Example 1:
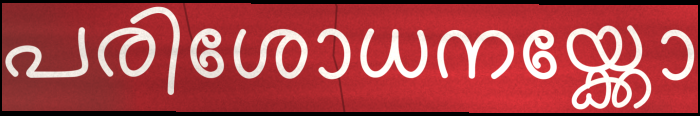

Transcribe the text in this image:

പരിശോധനയ്ക്കോ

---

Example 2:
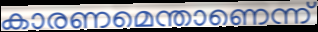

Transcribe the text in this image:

കാരണമെന്താണെന്ന്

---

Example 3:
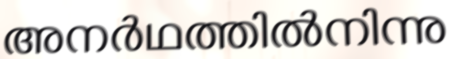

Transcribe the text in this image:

അനർഥത്തിൽനിന്നു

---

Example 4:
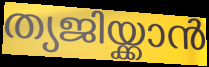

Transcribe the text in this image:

ത്യജിയ്ക്കാൻ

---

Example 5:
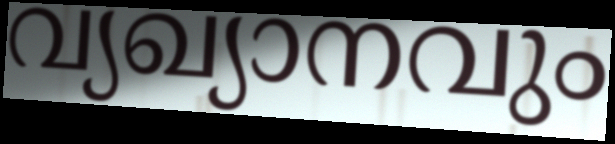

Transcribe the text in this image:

വ്യഖ്യാനവും